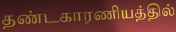
தண்டகாரணியத்தில்